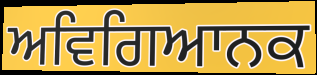
ਅਵਿਗਿਆਨਕ